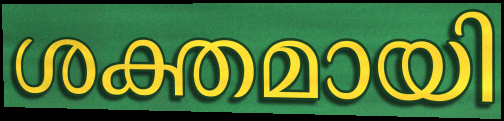
ശക്തമായി